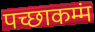
पच्छाकम्मं